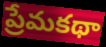
ప్రేమకథా